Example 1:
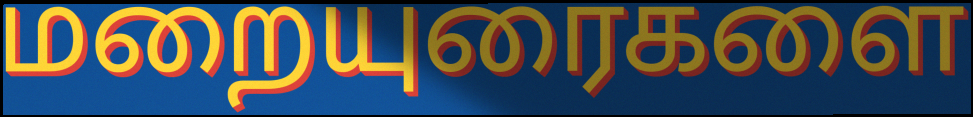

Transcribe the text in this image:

மறையுரைகளை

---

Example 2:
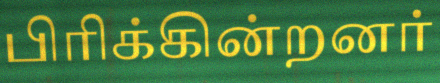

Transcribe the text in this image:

பிரிக்கின்றனர்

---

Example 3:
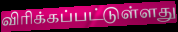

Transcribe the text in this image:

விரிக்கப்பட்டுள்ளது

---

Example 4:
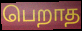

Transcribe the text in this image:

பெறாத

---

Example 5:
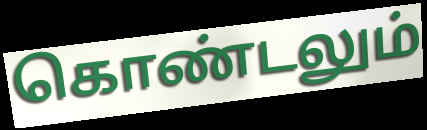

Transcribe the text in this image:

கொண்டலும்